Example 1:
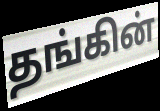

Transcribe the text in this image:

தங்கின்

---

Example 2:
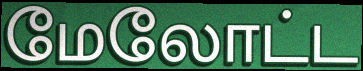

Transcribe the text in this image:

மேலோட்ட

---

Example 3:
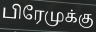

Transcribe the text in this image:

பிரேமுக்கு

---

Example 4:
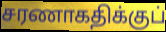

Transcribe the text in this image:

சரணாகதிக்குப்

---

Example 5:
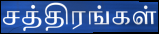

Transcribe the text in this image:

சத்திரங்கள்